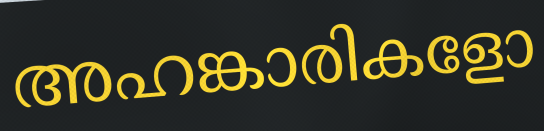
അഹങ്കാരികളോ